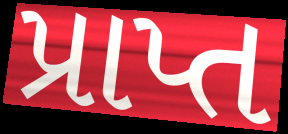
પ્રાપ્‍ત